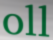
oll